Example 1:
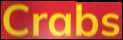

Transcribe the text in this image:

Crabs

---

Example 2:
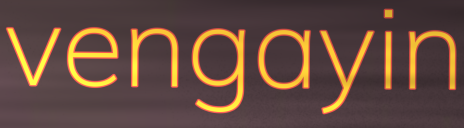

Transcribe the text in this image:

vengayin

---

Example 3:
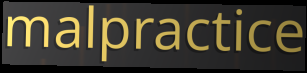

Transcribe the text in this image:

malpractice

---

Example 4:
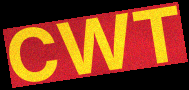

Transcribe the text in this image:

CWT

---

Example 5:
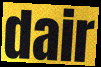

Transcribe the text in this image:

dair